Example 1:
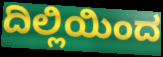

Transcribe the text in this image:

ದಿಲ್ಲಿಯಿಂದ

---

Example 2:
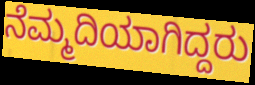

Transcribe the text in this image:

ನೆಮ್ಮದಿಯಾಗಿದ್ದರು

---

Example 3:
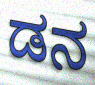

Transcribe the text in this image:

ಡನ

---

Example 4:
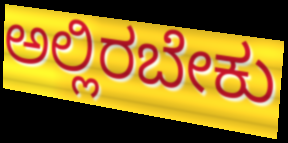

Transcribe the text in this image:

ಅಲ್ಲಿರಬೇಕು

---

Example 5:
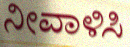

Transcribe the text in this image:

ನೀವಾಳಿಸಿ